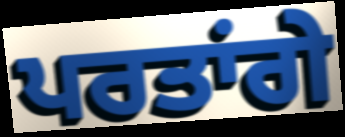
ਪਰਤਾਂਗੇ